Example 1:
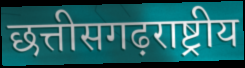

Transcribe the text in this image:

छत्तीसगढ़राष्ट्रीय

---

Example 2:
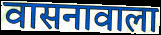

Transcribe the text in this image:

वासनावाला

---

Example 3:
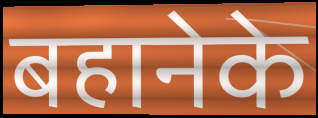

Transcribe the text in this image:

बहानेके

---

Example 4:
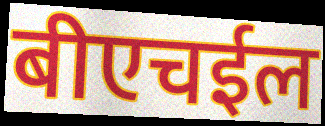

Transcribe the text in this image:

बीएचईल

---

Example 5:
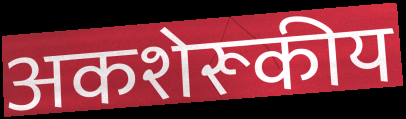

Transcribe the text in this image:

अकशेरूकीय